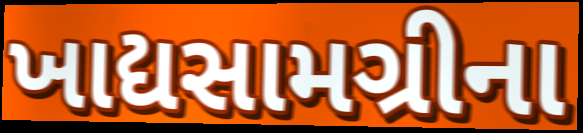
ખાદ્યસામગ્રીના